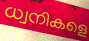
ധ്വനികളെ